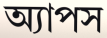
অ্যাপস